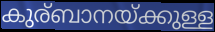
കുര്ബാനയ്ക്കുള്ള